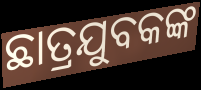
ଛାତ୍ରଯୁବକଙ୍କ